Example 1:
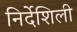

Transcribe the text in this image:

निर्देशिली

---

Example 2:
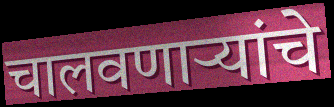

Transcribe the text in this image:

चालवणाऱ्यांचे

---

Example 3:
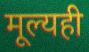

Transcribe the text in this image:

मूल्यही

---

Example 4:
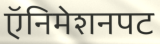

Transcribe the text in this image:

ऍनिमेशनपट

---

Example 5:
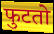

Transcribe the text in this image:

फुटतो